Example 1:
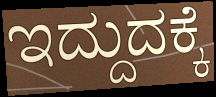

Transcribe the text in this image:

ಇದ್ದುದಕ್ಕೆ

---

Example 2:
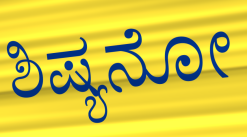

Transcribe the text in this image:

ಶಿಷ್ಯನೋ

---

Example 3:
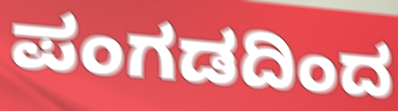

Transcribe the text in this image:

ಪಂಗಡದಿಂದ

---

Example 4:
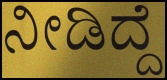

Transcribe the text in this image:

ನೀಡಿದ್ದೆ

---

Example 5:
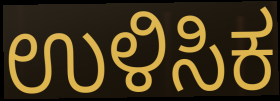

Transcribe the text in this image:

ಉಳಿಸಿಕ